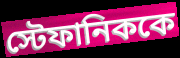
স্টেফানিককে